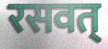
रसवत्